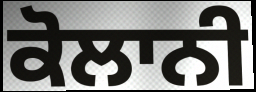
ਕੋਲਾਨੀ